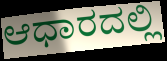
ಆಧಾರದಲ್ಲಿ